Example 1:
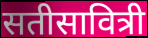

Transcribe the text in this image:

सतीसावित्री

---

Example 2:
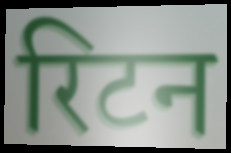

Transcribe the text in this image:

रिटन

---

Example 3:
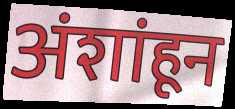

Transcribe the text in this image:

अंशांहून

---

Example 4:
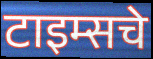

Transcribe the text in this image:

टाइम्सचे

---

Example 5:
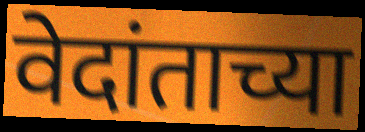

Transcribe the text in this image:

वेदांताच्या